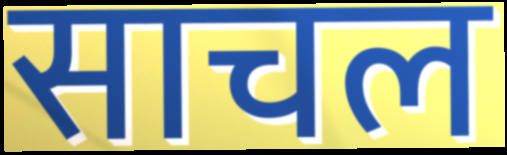
साचल